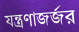
যন্ত্রণাজর্জর